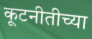
कूटनीतीच्या